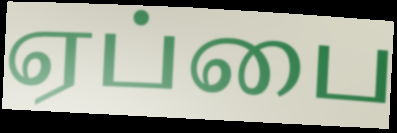
ஏப்பை